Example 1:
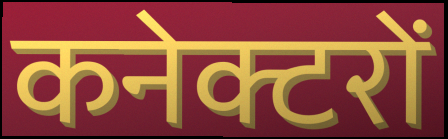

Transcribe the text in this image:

कनेक्टरों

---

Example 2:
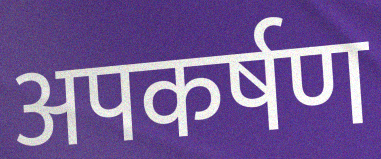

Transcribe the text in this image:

अपकर्षण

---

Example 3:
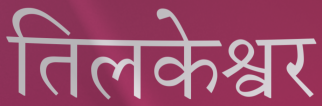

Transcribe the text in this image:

तिलकेश्वर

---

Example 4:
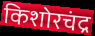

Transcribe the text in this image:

किशोरचंद्र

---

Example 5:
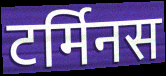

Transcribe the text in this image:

टर्मिनस